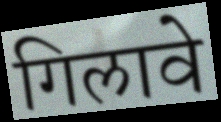
गिलावे